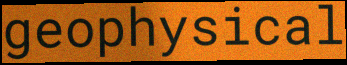
geophysical